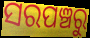
ସରପଞ୍ଚରୁ